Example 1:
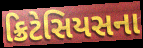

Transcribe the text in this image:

ક્રિટેસિયસના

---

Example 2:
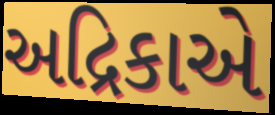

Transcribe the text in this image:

અદ્રિકાએ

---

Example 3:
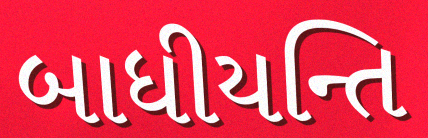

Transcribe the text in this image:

બાધીયન્તિ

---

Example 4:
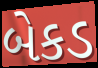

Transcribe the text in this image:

બેકડ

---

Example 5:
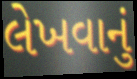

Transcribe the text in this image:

લેખવાનું